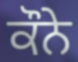
ਕੌਨੇ